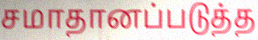
சமாதானப்படுத்த